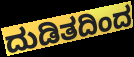
ದುಡಿತದಿಂದ